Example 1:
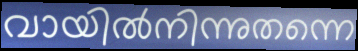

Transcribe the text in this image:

വായിൽനിന്നുതന്നെ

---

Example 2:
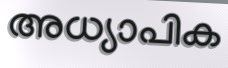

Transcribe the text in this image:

അധ്യാപിക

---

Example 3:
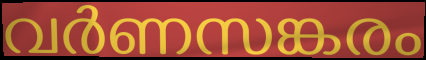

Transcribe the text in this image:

വർണസങ്കരം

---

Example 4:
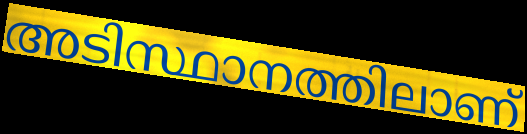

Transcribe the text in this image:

അടിസ്ഥാനത്തിലാണ്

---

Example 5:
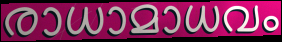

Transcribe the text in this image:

രാധാമാധവം